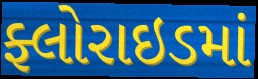
ફ્લોરાઇડમાં